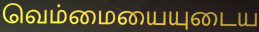
வெம்மையையுடைய